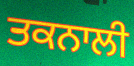
ਤਕਨਾਲੀ